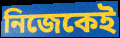
নিজেকেই